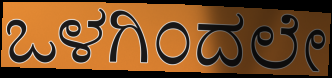
ಒಳಗಿಂದಲೇ